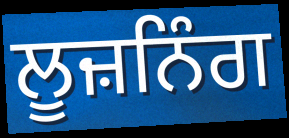
ਲੂਜ਼ਨਿੰਗ